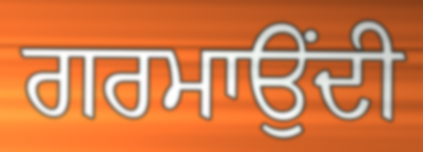
ਗਰਮਾਉਂਦੀ